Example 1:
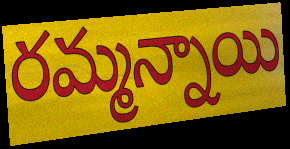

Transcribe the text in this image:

రమ్మన్నాయి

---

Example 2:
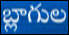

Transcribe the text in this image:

బ్లాగుల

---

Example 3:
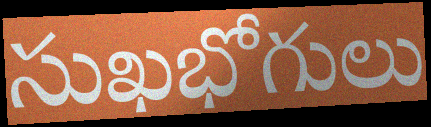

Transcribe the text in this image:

సుఖభోగులు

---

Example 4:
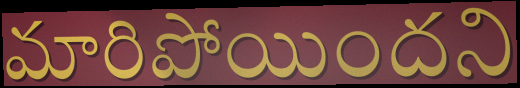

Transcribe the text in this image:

మారిపోయిందని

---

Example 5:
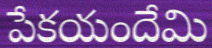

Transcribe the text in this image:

పేకయందేమి